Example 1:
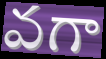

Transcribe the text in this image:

వగా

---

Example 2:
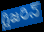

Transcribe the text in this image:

గ్లిజరిన్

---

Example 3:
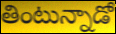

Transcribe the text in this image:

తింటున్నాడో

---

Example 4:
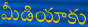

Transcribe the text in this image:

మీడియాకు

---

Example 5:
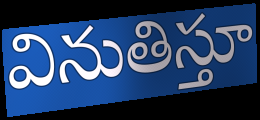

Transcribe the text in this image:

వినుతిస్తూ